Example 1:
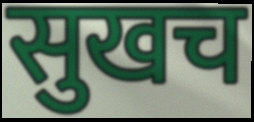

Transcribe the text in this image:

सुखच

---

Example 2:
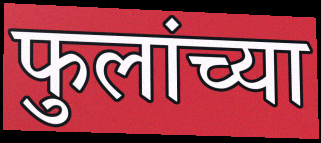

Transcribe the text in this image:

फुलांच्या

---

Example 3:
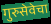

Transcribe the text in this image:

गुरुसेवेचा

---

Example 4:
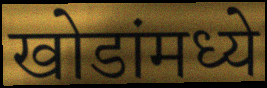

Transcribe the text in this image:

खोडांमध्ये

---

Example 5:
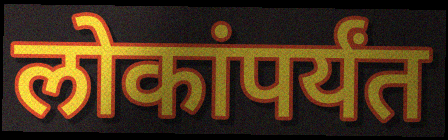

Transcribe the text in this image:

लोकांपर्यंत